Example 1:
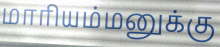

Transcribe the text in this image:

மாரியம்மனுக்கு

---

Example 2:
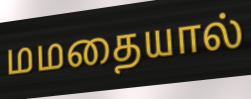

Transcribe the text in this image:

மமதையால்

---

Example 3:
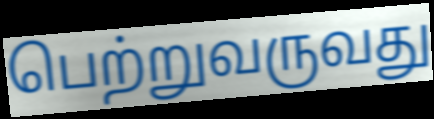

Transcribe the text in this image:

பெற்றுவருவது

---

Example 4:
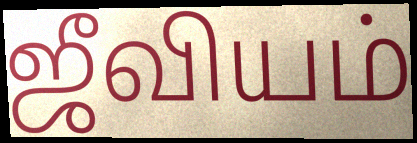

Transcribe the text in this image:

ஜீவியம்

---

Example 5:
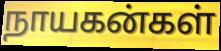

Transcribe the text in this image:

நாயகன்கள்